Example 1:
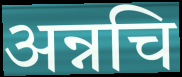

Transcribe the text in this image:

अन्नचि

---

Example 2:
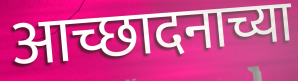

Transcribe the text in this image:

आच्छादनाच्या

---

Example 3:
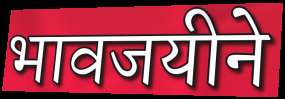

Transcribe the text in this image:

भावजयीने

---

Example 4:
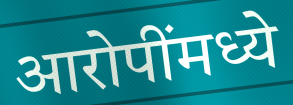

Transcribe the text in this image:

आरोपींमध्ये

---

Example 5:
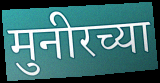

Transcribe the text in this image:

मुनीरच्या